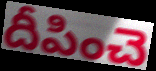
దీపించె